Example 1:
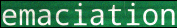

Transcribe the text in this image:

emaciation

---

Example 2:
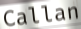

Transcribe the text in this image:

Callan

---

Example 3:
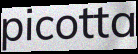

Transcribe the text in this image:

picotta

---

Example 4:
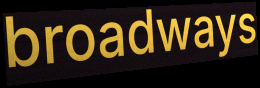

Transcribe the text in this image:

broadways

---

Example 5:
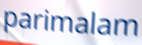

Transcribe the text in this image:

parimalam